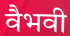
वैभवी